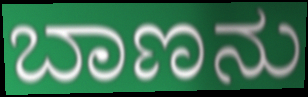
ಬಾಣನು